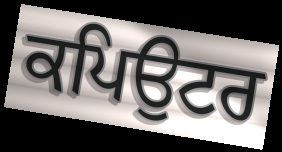
ਕਪਿਉਟਰ